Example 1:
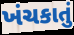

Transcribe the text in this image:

ખંચકાતું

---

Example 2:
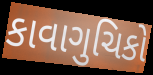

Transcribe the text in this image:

કાવાગુચિકો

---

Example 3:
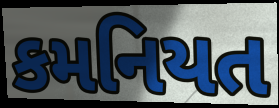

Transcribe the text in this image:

કમનિયત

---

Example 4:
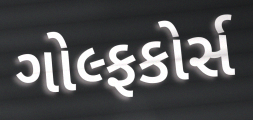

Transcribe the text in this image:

ગોલ્ફકોર્સ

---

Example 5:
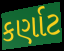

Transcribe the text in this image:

કર્ણાટ